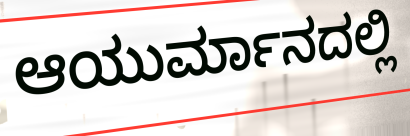
ಆಯುರ್ಮಾನದಲ್ಲಿ